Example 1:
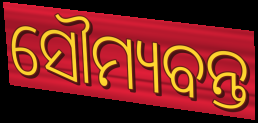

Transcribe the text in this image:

ସୌମ୍ୟବନ୍ତ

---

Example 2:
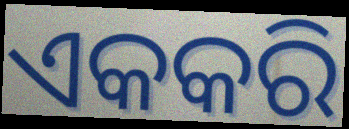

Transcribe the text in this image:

ଏକକରି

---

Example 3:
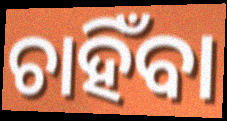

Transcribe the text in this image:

ଚାହିଁବା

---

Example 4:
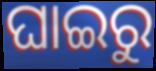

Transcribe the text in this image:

ଘାଇରୁ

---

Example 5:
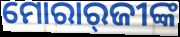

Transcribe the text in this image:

ମୋରାର୍‌ଜୀଙ୍କ